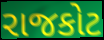
રાજકોટ